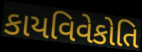
કાયવિવેકોતિ